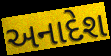
અનાદેશ